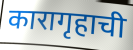
कारागृहाची